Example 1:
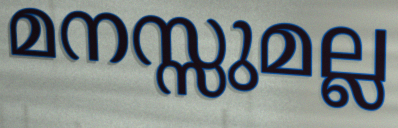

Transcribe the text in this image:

മനസ്സുമല്ല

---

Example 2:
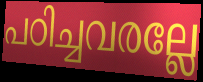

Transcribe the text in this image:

പഠിച്ചവരല്ലേ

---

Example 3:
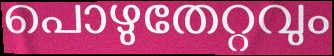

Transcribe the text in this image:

പൊഴുതേറ്റവും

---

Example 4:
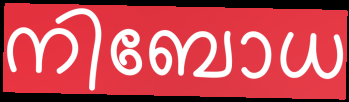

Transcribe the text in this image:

നിബോധ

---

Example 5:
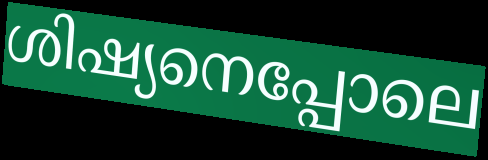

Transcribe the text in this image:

ശിഷ്യനെപ്പോലെ